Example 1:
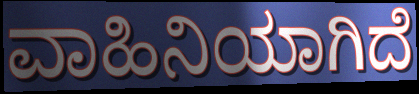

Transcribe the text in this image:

ವಾಹಿನಿಯಾಗಿದೆ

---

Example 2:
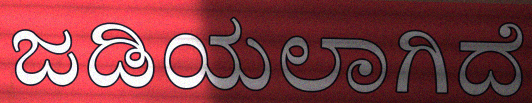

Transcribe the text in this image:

ಜಡಿಯಲಾಗಿದೆ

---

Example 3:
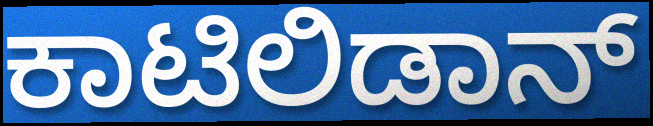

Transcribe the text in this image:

ಕಾಟಿಲಿಡಾನ್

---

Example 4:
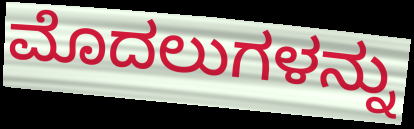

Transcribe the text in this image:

ಮೊದಲುಗಳನ್ನು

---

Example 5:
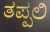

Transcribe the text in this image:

ತಪ್ಪಲಿ